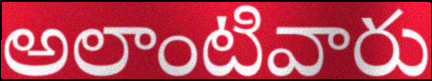
అలాంటివారు